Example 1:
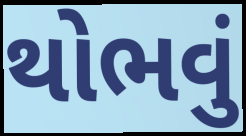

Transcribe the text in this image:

થોભવું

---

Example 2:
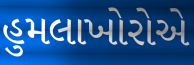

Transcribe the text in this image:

હુમલાખોરોએ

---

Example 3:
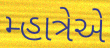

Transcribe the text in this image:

મ્હાત્રેએ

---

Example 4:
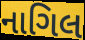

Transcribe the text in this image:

નાગિલ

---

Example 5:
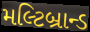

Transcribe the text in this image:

મલ્ટિબ્રાન્ડ